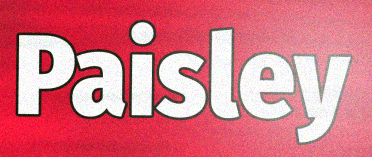
Paisley